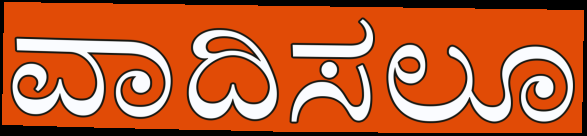
ವಾದಿಸಲೂ